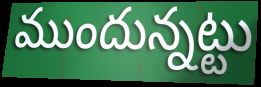
ముందున్నట్టు